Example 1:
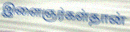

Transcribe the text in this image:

இளைஞர்கள்தான்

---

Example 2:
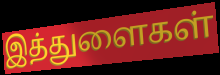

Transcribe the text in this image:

இத்துளைகள்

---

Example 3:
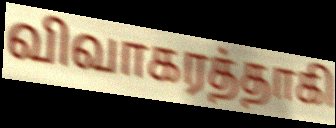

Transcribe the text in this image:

விவாகரத்தாகி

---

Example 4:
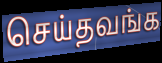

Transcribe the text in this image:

செய்தவங்க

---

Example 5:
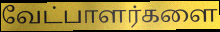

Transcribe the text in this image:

வேட்பாளர்களை